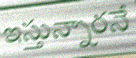
ఇస్తున్నారనే